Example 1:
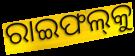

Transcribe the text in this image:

ରାଇଫଲ୍‍କୁ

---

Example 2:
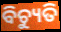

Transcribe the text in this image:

ବିଚ୍ୟୁତି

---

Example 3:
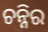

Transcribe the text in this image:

ଚନ୍ନିର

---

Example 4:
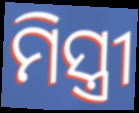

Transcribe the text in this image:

ମିସ୍ତ୍ରୀ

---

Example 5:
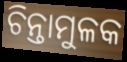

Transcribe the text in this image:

ଚିନ୍ତାମୁଳକ